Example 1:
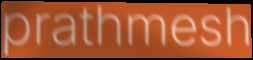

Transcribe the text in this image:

prathmesh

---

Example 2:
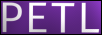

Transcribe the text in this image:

PETL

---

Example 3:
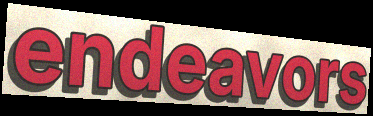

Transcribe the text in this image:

endeavors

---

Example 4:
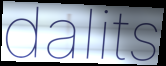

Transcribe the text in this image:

dalits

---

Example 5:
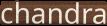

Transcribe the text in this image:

chandra